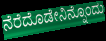
ನೆರೆದೊಡೇನಿನ್ನೊಂದು